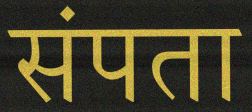
संपता